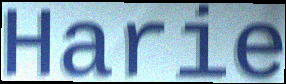
Harie